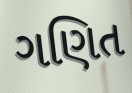
ગણિત